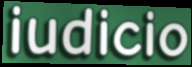
iudicio